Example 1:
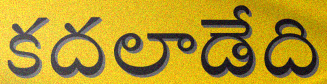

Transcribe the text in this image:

కదలాడేది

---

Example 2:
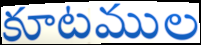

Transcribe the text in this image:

కూటముల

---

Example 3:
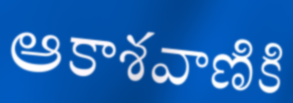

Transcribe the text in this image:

ఆకాశవాణికి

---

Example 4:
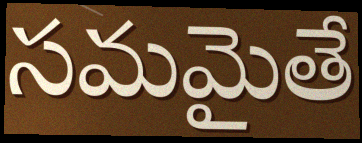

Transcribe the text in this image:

సమమైతే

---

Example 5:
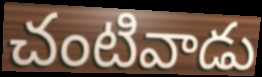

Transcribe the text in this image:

చంటివాడు